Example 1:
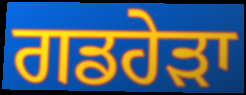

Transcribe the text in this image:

ਗਡਹੇੜਾ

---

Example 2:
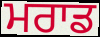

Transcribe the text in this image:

ਮਰਾਡ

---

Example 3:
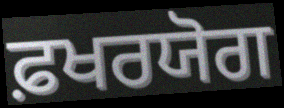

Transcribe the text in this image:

ਫ਼ਖਰਯੋਗ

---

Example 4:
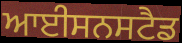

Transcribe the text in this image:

ਆਈਸਨਸਟੈਡ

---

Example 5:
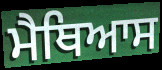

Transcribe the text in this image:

ਮੈਥਿਆਸ